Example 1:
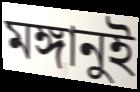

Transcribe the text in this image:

মঙ্গানুই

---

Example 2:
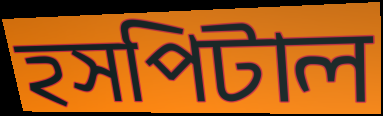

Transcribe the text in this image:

হসপিটাল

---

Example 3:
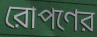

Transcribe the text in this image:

রোপণের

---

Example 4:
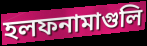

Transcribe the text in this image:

হলফনামাগুলি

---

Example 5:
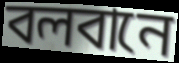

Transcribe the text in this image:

বলবানে